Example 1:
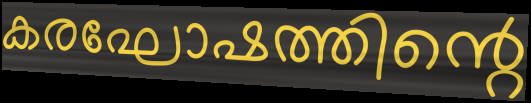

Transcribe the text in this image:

കരഘോഷത്തിന്റെ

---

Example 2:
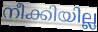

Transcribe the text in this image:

നീക്കിയില്ല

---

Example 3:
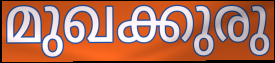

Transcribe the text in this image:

മുഖക്കുരു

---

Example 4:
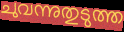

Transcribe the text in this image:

ചുവന്നുതുടുത്ത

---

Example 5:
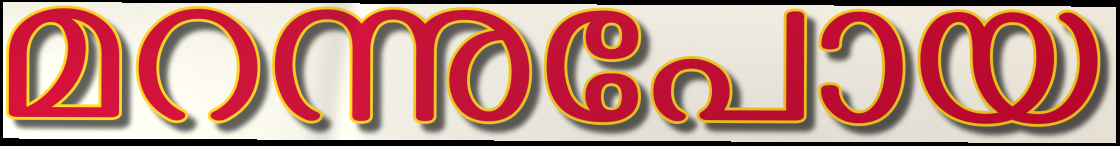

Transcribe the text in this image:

മറന്നുപോയ